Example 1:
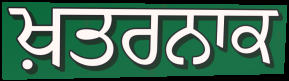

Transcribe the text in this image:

ਖ਼ਤਰਨਾਕ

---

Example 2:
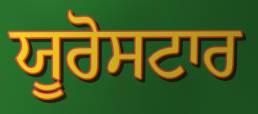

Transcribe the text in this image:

ਯੂਰੋਸਟਾਰ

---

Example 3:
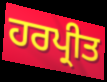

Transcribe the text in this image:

ਹਰਪ੍ਰੀਤ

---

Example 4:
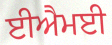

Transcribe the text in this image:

ਈਐਮਈ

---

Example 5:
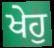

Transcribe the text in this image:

ਖੇਹੁ